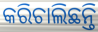
କରିଚାଲିଛନ୍ତି